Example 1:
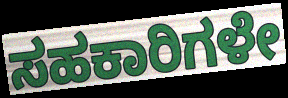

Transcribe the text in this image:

ಸಹಕಾರಿಗಳೇ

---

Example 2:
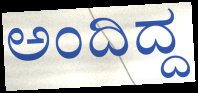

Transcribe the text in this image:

ಅಂದಿದ್ದ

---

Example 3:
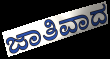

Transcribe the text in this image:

ಜಾತಿವಾದ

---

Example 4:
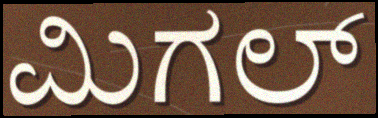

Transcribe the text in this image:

ಮಿಗಲ್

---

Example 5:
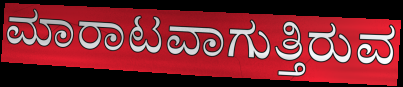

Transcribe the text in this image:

ಮಾರಾಟವಾಗುತ್ತಿರುವ